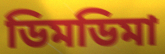
ডিমডিমা